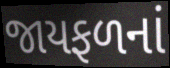
જાયફળનાં